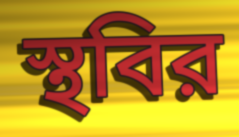
স্থবির